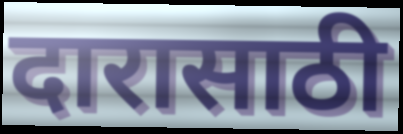
दारासाठी